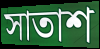
সাতাশ